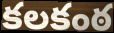
కలకంఠ